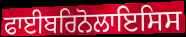
ਫਾਈਬਰਿਨੋਲਾਇਸਿਸ